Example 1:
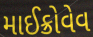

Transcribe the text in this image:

માઈક્રોવેવ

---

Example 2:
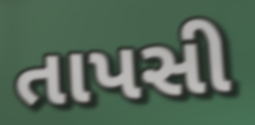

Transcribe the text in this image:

તાપસી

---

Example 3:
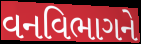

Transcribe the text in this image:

વનવિભાગને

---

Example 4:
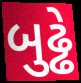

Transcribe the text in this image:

બુઢ્ઢે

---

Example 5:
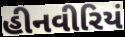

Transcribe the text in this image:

હીનવીરિયં